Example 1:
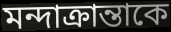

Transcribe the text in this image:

মন্দাক্রান্তাকে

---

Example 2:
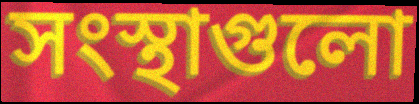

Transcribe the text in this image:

সংস্থাগুলো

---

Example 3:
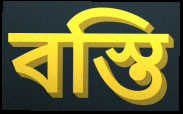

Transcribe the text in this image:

বস্তি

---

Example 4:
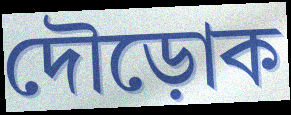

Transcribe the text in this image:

দৌড়োক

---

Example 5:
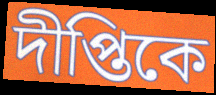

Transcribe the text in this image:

দীপ্তিকে